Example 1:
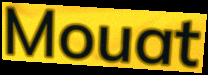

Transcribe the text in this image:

Mouat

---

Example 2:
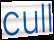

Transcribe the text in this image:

cull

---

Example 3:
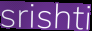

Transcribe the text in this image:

srishti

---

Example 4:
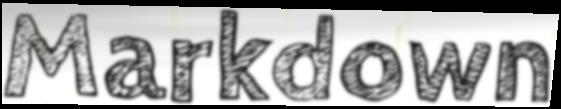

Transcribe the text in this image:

Markdown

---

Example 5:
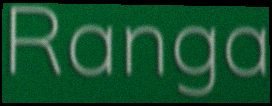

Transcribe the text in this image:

Ranga